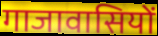
गाजावासियों